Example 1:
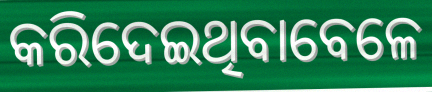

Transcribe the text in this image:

କରିଦେଇଥିବାବେଳେ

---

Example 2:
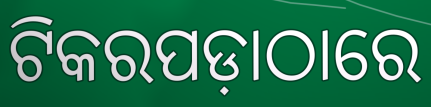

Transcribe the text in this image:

ଟିକରପଡ଼ାଠାରେ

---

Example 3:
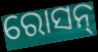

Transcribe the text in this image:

ରୋସନ୍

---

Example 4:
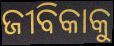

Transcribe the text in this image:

ଜୀବିକାକୁ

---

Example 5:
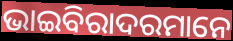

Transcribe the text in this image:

ଭାଇବିରାଦରମାନେ